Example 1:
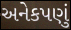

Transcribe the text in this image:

અનેકપણું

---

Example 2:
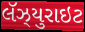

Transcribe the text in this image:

લૅઝ્યુરાઇટ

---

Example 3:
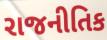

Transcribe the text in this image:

રાજનીતિક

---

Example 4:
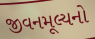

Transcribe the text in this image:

જીવનમૂલ્યનો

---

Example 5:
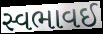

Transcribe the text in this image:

સ્વભાવઈ